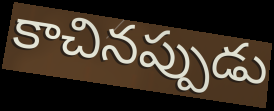
కాచినప్పుడు